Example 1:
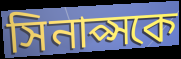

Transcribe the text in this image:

সিনাপ্সকে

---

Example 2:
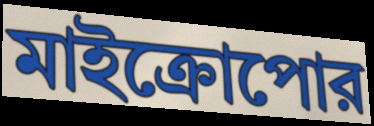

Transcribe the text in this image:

মাইক্রোপোর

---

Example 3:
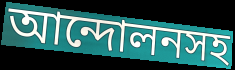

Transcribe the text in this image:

আন্দোলনসহ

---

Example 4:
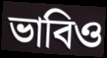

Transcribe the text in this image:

ভাবিও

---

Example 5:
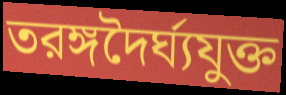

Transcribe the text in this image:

তরঙ্গদৈর্ঘ্যযুক্ত